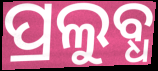
ପ୍ରଲୁବ୍ଧ